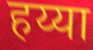
हय्या